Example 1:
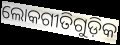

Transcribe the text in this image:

ଲୋକଗୀତିଗୁଡ଼ିକ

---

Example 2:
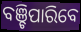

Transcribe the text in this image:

ବଞ୍ଚିପାରିବେ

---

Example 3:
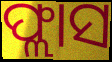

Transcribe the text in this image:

ଫ୍ଲାସ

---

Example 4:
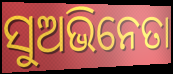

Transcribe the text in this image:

ସୁଅଭିନେତା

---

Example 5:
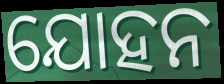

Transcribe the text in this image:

ଯୋହନ